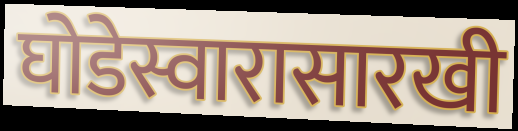
घोडेस्वारासारखी